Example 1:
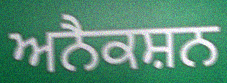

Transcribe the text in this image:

ਅਨੈਕਸ਼ਨ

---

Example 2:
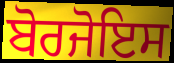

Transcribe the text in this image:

ਬੋਰਜੋਇਸ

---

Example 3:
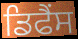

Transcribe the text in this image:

ਡਿਫੈਂਸ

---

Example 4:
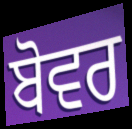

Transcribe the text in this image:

ਬੋਵਰ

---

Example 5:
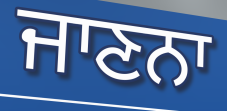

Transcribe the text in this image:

ਜਾਣਨਾ